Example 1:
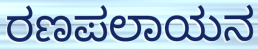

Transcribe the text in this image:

ರಣಪಲಾಯನ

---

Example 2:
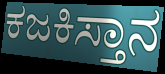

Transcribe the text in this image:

ಕಜಕಿಸ್ತಾನ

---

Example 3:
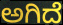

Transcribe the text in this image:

ಅಗಿದೆ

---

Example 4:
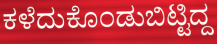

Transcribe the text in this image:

ಕಳೆದುಕೊಂಡುಬಿಟ್ಟಿದ್ದ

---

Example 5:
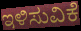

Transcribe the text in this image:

ಇಳಿಸುವಿಕೆ